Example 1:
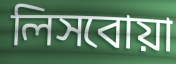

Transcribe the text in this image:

লিসবোয়া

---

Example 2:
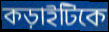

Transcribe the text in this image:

কড়াইটিকে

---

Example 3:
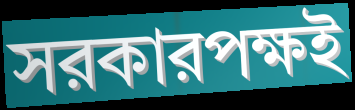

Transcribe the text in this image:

সরকারপক্ষই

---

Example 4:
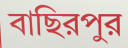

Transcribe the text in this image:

বাছিরপুর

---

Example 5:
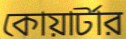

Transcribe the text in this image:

কোয়ার্টার